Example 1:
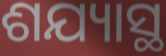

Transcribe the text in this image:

ଶଯ୍ୟାସ୍ଥ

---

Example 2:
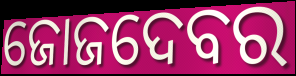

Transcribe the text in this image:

ଜୋଜଦେବର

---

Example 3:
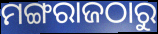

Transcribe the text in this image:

ମଙ୍ଗରାଜଠାରୁ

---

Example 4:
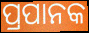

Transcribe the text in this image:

ପ୍ରପାନକ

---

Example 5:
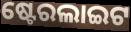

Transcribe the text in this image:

ଷ୍ଟେରଲାଇଟ